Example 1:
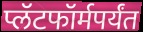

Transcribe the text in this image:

प्लॅटफॉर्मपर्यंत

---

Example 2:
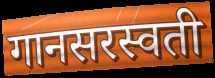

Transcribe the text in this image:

गानसरस्वती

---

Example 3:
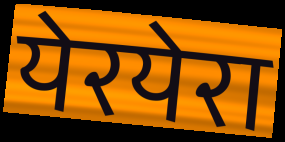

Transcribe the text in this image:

येरयेरा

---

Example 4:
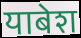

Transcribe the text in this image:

याबेश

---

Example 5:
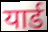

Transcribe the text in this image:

यार्ड